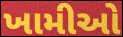
ખામીઓ